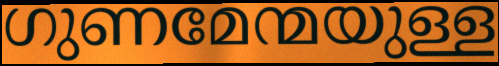
ഗുണമേന്മയുള്ള